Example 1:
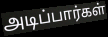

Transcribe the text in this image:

அடிப்பார்கள்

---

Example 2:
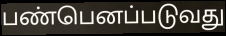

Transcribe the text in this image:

பண்பெனப்படுவது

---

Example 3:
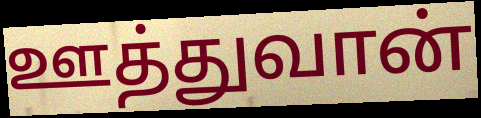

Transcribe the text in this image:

ஊத்துவான்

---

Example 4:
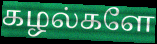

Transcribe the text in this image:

கழல்களே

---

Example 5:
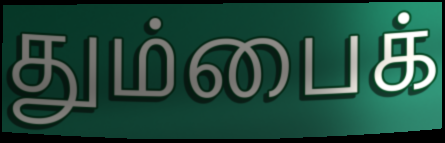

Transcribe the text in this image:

தும்பைக்